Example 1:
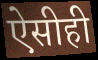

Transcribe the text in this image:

ऐसीही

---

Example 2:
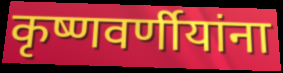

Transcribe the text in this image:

कृष्णवर्णीयांना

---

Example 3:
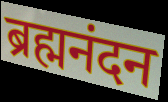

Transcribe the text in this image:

ब्रह्मनंदन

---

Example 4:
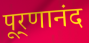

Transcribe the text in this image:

पूर्णानंद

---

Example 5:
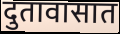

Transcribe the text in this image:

दुतावासात